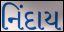
નિંદાય